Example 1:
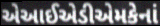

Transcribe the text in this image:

એઆઈએડીએમકેનાં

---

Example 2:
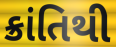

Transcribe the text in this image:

ક્રાંતિથી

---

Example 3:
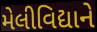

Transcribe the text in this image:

મેલીવિદ્યાને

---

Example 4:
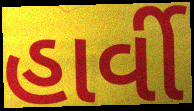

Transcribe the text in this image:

હાર્વી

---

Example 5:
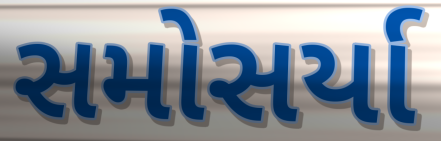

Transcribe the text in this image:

સમોસર્યા